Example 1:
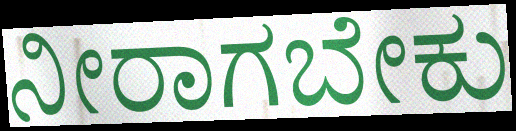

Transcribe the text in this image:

ನೀರಾಗಬೇಕು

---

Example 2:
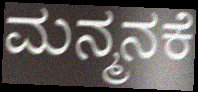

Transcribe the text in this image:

ಮನ್ಮನಕೆ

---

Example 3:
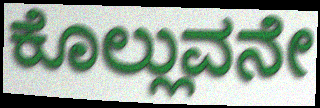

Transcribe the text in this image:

ಕೊಲ್ಲುವನೇ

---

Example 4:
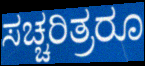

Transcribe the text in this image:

ಸಚ್ಚರಿತ್ರರೂ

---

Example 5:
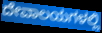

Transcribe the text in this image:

ದೇವಾಲಯಗಳಲ್ಲಿ